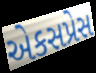
એકસપ્રેસ